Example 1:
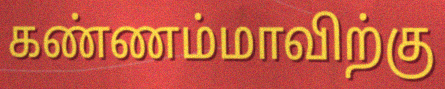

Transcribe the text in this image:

கண்ணம்மாவிற்கு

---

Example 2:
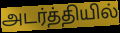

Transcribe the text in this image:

அடர்த்தியில்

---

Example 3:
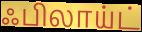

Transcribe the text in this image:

ஃபிலாய்ட்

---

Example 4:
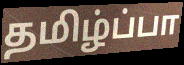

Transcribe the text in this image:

தமிழ்ப்பா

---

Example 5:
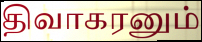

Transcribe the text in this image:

திவாகரனும்